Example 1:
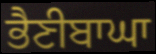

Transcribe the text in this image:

ਭੈਣੀਬਾਘਾ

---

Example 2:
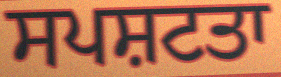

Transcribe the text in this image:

ਸਪਸ਼ਟਤਾ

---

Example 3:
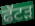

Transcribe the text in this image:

ਫੱਟੜ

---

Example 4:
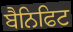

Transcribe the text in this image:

ਬੈਨਿਫਿਟ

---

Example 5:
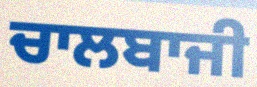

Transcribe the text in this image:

ਚਾਲਬਾਜੀ